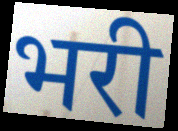
भरी